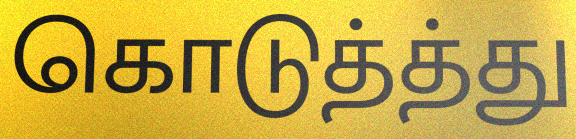
கொடுத்த்து